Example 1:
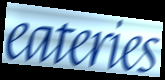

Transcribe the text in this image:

eateries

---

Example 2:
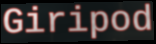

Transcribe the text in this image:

Giripod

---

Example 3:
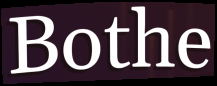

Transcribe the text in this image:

Bothe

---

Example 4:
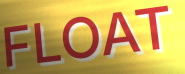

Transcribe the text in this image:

FLOAT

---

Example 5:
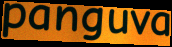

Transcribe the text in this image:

panguva